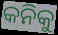
କନିକୁ